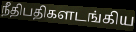
நீதிபதிகளடங்கிய